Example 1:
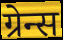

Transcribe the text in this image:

ग्रेन्स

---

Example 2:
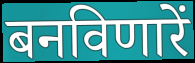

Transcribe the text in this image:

बनविणारें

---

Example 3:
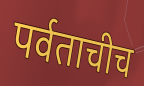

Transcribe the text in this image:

पर्वताचीच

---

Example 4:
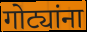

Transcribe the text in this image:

गोट्यांना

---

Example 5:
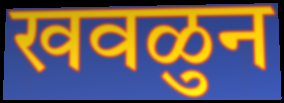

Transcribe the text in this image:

खवळुन